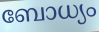
ബോധ്യം